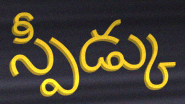
స్పీడ్కు